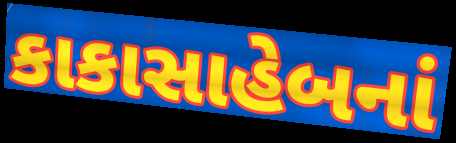
કાકાસાહેબનાં